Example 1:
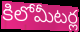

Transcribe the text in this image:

కిలోమీటర్ల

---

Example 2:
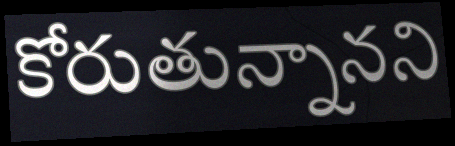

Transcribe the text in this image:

కోరుతున్నానని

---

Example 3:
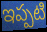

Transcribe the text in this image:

ఇప్పటి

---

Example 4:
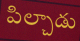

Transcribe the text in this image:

పిల్చాడు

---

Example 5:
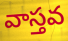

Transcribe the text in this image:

వాస్తవ